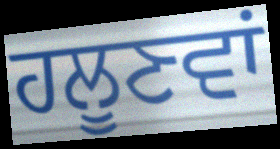
ਹਲੂਣਵਾਂ